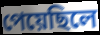
পেয়েছিলে